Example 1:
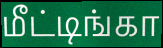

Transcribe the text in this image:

மீட்டிங்கா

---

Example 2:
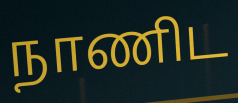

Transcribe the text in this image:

நாணிட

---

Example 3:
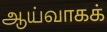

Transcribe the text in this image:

ஆய்வாகக்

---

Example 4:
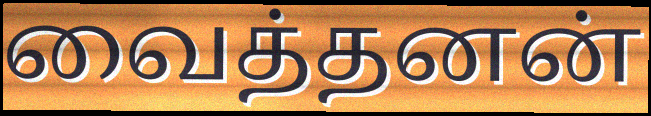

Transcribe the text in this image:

வைத்தனன்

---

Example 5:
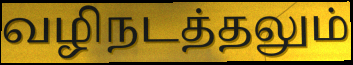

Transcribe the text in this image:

வழிநடத்தலும்